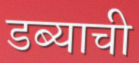
डब्याची